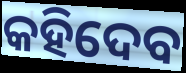
କହିଦେବ